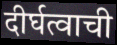
दीर्घत्वाची